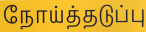
நோய்த்தடுப்பு